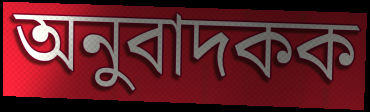
অনুবাদকক